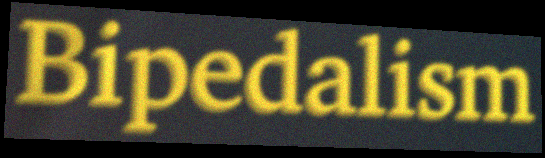
Bipedalism